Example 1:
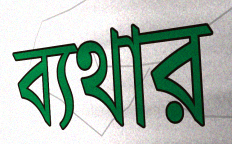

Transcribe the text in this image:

ব্যথার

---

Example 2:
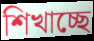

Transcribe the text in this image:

শিখাচ্ছে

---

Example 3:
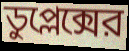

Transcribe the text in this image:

ডুপ্লেক্সের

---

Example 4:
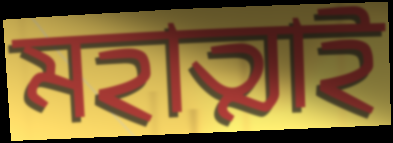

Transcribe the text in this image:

মহাত্মাই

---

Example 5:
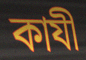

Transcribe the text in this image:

কাযী